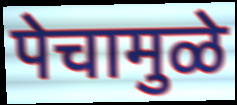
पेचामुळे